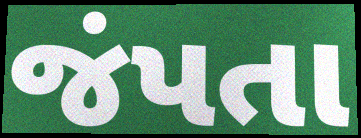
જંપતા